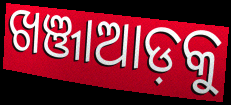
ଖଞ୍ଜାଆଡ଼କୁ